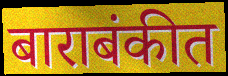
बाराबंकीत